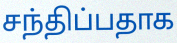
சந்திப்பதாக